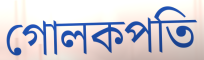
গোলকপতি